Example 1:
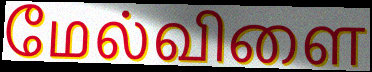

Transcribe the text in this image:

மேல்விளை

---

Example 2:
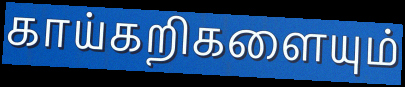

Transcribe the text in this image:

காய்கறிகளையும்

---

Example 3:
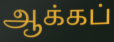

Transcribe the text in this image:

ஆக்கப்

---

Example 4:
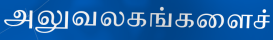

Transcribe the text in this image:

அலுவலகங்களைச்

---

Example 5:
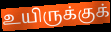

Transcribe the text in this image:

உயிருக்குக்